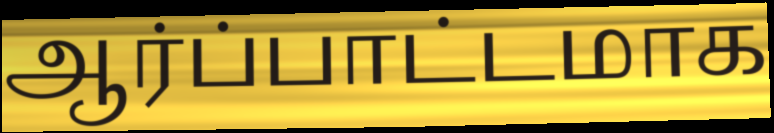
ஆர்ப்பாட்டமாக